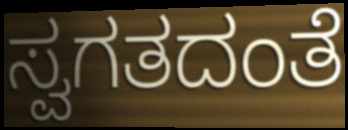
ಸ್ವಗತದಂತೆ